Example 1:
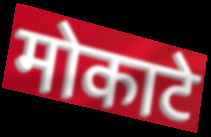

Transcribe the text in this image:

मोकाटे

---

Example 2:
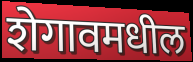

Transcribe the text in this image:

शेगावमधील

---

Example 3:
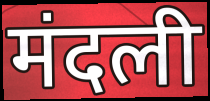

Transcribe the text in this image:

मंदली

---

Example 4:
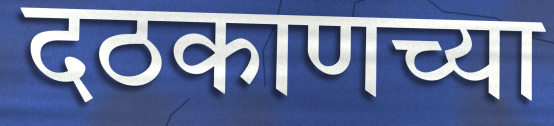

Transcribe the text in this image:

दठकाणच्या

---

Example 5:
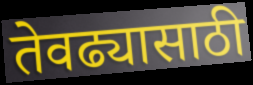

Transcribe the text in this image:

तेवढ्यासाठी